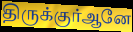
திருக்குர்ஆனே